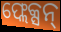
ଫ୍ଲେକ୍ସନ୍